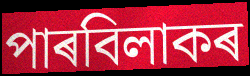
পাৰবিলাকৰ